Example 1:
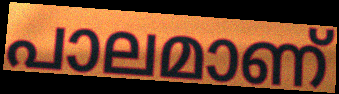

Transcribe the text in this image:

പാലമാണ്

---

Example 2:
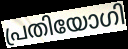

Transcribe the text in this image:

പ്രതിയോഗി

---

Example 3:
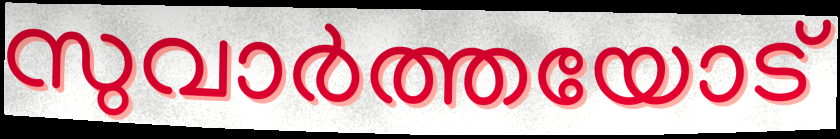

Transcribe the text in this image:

സുവാർത്തയോട്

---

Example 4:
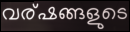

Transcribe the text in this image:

വര്ഷങ്ങളുടെ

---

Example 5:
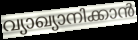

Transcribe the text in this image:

വ്യാഖ്യാനിക്കാൻ